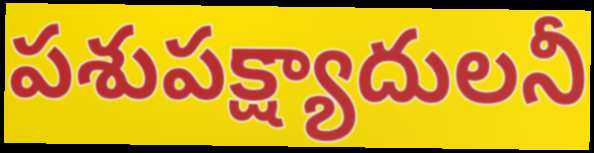
పశుపక్ష్యాదులనీ